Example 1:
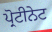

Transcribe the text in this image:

ਪ੍ਰੋਟੀਨੇਟ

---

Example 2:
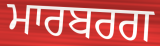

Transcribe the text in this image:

ਮਾਰਬਰਗ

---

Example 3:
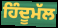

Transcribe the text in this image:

ਹਿੰਦੂਮੱਲ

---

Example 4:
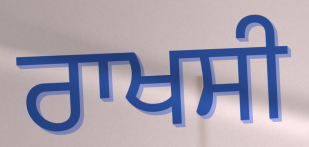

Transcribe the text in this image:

ਰਾਖਸੀ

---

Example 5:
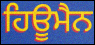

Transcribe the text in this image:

ਹਿਊਮੈਨ